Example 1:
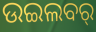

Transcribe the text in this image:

ଉଇଲବର୍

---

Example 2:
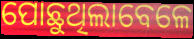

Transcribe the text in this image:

ପୋଛୁଥିଲାବେଳେ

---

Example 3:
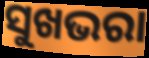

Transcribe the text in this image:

ସୁଖଭରା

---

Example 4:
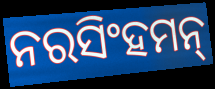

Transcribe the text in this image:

ନରସିଂହମନ୍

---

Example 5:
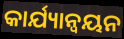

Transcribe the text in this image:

କାର୍ଯ୍ୟାନ୍ଵୟନ